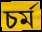
চৰ্ম